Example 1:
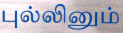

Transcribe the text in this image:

புல்லினும்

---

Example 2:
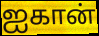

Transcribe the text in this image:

ஐகான்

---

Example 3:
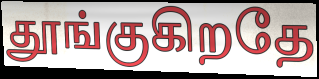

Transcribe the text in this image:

தூங்குகிறதே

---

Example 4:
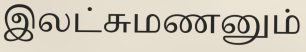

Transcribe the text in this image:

இலட்சுமணனும்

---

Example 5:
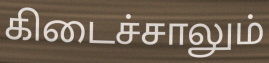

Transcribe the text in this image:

கிடைச்சாலும்